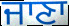
ਜਾਣਾ